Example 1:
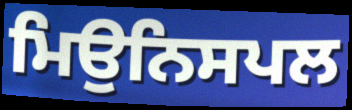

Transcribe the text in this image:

ਮਿਉਨਿਸਪਲ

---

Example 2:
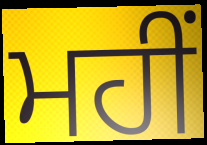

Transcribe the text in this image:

ਮਹੀਂ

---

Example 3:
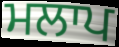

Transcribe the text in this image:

ਮਲਾਪ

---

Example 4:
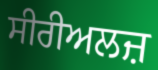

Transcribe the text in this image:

ਸੀਰੀਅਲਜ਼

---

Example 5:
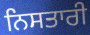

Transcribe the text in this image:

ਨਿਸਤਾਰੀ